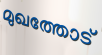
മുഖത്തോട്